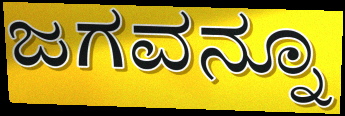
ಜಗವನ್ನೂ